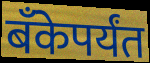
बॅंकेपर्यंत